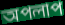
অপলাপ